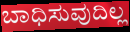
ಬಾಧಿಸುವುದಿಲ್ಲ